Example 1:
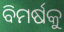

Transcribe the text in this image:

ବିମର୍ଷକୁ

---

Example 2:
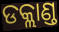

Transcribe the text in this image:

ଡକ୍ଲାଣ୍ଡ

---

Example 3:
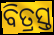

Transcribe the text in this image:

ବିତ୍ରସ୍ତ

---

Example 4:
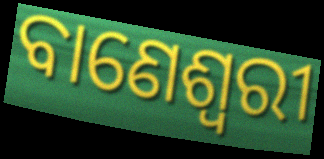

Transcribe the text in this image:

ବାଣେଶ୍ୱରୀ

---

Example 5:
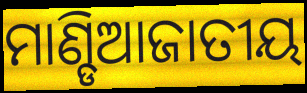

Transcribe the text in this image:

ମାଣ୍ଡିଆଜାତୀୟ